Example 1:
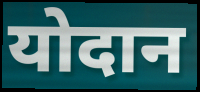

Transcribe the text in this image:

योदान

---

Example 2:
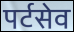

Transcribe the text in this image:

पर्टसेव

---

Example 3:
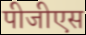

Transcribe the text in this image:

पीजीएस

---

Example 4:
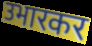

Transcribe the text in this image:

उभारकर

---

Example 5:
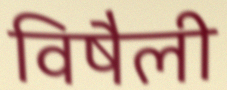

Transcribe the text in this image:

विषैली